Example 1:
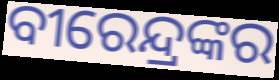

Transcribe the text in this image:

ବୀରେନ୍ଦ୍ରଙ୍କର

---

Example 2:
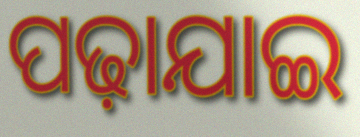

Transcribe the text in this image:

ପଢ଼ାଯାଇ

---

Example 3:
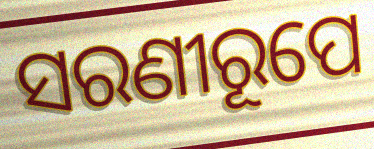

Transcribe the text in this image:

ସରଣୀରୂପେ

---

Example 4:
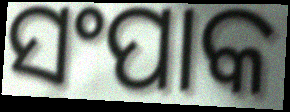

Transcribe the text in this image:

ସଂପାକ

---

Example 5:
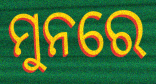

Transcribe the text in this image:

ମୁନରେ